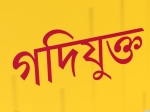
গদিযুক্ত